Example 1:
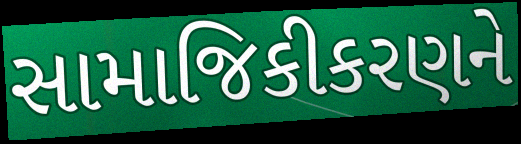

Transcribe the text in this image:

સામાજિકીકરણને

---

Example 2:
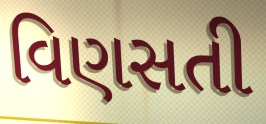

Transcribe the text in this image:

વિણસતી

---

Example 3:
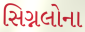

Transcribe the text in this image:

સિગ્નલોના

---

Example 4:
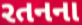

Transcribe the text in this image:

રતનના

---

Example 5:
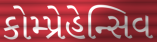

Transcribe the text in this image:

કોમ્પ્રેહેન્સિવ